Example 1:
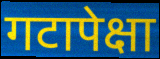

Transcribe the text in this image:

गटापेक्षा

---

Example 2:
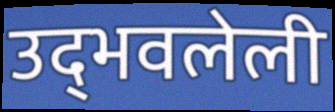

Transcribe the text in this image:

उद्‌भवलेली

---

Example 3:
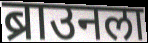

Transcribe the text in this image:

ब्राउनला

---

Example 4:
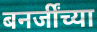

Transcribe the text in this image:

बनर्जींच्या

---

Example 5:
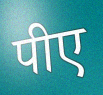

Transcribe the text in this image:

पीए